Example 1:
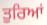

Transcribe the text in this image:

ਤੁਰਿਆਂ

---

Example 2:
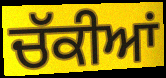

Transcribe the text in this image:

ਚੱਕੀਆਂ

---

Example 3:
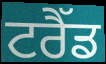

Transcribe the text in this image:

ਟਰੈੱਡ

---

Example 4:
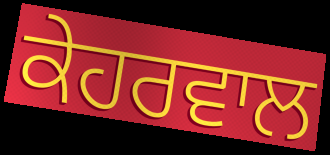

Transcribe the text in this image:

ਕੇਹਰਵਾਲ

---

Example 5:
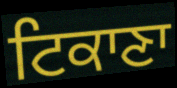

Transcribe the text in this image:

ਟਿਕਾਣਾ